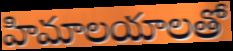
హిమాలయాలతో